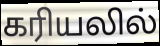
கரியலில்